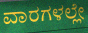
ವಾರಗಳಲ್ಲೇ